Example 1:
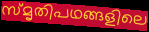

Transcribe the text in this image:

സ്മൃതിപഥങ്ങളിലെ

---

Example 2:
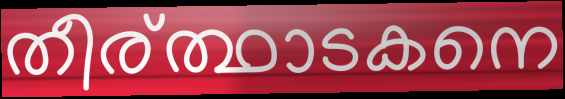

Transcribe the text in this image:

തീര്ത്ഥാടകനെ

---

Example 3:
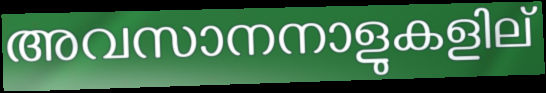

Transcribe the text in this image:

അവസാനനാളുകളില്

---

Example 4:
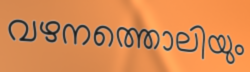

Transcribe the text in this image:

വഴനത്തൊലിയും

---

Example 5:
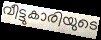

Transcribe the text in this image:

വീട്ടുകാരിയുടെ